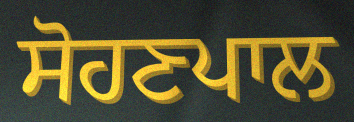
ਸੋਹਣਪਾਲ